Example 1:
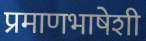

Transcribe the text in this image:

प्रमाणभाषेशी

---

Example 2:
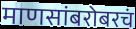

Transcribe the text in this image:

माणसांबरोबरचं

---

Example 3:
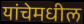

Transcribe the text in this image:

यांचेमधील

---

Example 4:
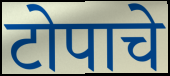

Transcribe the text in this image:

टोपाचे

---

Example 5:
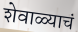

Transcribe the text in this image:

शेवाळ्याचं